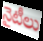
నైటీలు